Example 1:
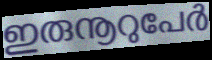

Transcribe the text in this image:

ഇരുനൂറുപേർ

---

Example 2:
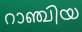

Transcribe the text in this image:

റാഞ്ചിയ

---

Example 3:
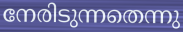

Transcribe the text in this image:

നേരിടുന്നതെന്നു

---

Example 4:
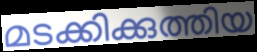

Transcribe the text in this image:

മടക്കിക്കുത്തിയ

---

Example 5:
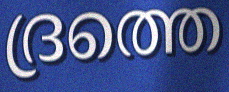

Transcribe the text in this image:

ദ്രത്തെ